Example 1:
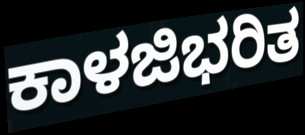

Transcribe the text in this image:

ಕಾಳಜಿಭರಿತ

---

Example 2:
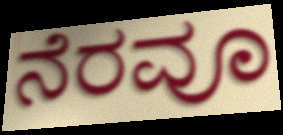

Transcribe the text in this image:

ನೆರವೂ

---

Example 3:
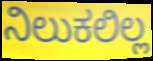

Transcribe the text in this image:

ನಿಲುಕಲಿಲ್ಲ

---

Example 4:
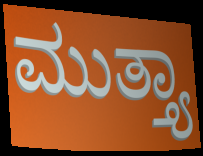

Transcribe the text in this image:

ಮುತ್ತ್ಯಾ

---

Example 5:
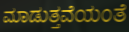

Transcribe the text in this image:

ಮಾಡುತ್ತವೆಯಂತೆ